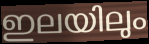
ഇലയിലും